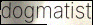
dogmatist